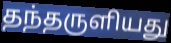
தந்தருளியது